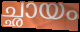
ച്ഛായം